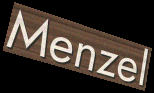
Menzel